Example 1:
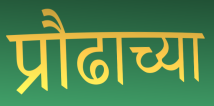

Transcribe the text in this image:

प्रौढाच्या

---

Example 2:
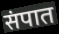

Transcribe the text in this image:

संपात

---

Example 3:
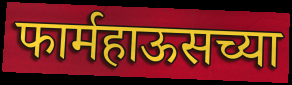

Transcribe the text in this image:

फार्महाऊसच्या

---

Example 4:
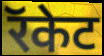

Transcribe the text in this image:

रॅकेट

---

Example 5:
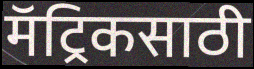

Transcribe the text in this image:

मॅट्रिकसाठी